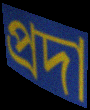
প্রদা